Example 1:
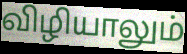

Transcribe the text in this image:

விழியாலும்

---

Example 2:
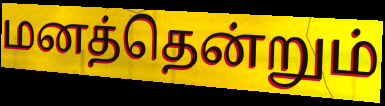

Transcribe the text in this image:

மனத்தென்றும்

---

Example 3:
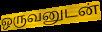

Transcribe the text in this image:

ஒருவனுடன்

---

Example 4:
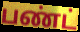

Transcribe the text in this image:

பண்ட்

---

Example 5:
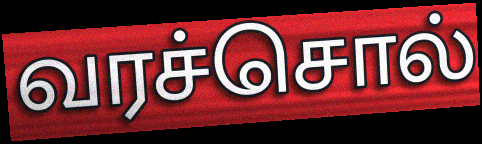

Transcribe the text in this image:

வரச்சொல்